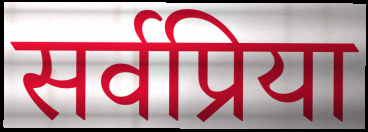
सर्वप्रिया